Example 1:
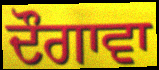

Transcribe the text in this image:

ਦੌਗਾਵਾ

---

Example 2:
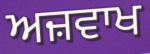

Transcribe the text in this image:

ਅਜ਼ਵਾਖ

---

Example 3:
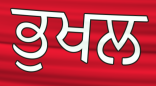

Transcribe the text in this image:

ਭੁਖਲ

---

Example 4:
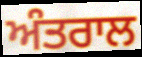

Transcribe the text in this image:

ਅੰਤਰਾਲ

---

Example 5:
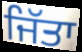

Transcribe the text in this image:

ਜਿੱਤਾ